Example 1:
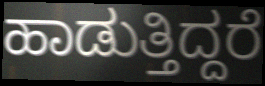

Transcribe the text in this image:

ಹಾಡುತ್ತಿದ್ದರೆ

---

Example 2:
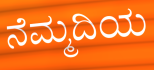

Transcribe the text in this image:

ನೆಮ್ಮದಿಯ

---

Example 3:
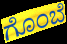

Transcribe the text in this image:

ಗೊಂಬೆ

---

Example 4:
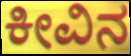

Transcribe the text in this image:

ಕೀವಿನ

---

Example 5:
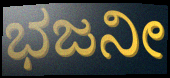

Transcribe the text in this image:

ಭಜನೀ